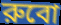
রুবো